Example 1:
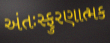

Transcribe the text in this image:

અંતઃસ્ફુરણાત્મક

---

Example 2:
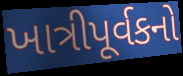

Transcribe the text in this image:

ખાત્રીપૂર્વકનો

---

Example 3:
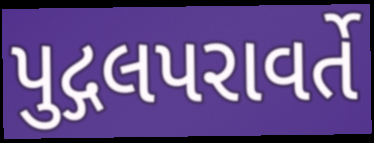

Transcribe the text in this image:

પુદ્ગલપરાવર્તે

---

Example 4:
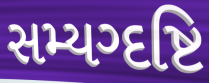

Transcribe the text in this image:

સમ્યગ્દષ્ટિ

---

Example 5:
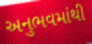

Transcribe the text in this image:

અનુભવમાંથી